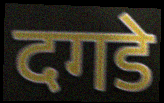
दगडे